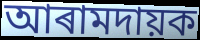
আৰামদায়ক